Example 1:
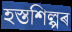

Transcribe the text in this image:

হস্তশিল্পৰ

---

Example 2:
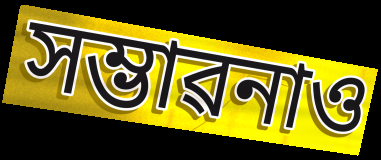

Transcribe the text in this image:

সম্ভাৱনাও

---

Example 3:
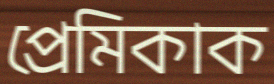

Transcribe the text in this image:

প্ৰেমিকাক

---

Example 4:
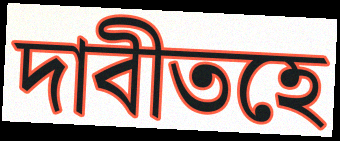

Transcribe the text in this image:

দাবীতহে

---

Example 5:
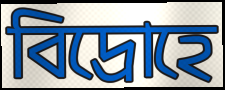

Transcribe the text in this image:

বিদ্ৰোহে